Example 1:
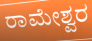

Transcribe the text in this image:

ರಾಮೇಶ್ವರ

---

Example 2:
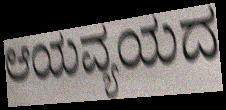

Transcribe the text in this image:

ಆಯವ್ಯಯದ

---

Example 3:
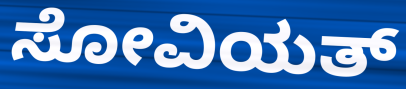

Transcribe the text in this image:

ಸೋವಿಯತ್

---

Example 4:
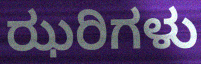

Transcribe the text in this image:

ಝರಿಗಳು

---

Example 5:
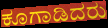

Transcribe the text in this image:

ಕೂಗಾಡಿದರು